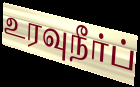
உரவுநீர்ப்